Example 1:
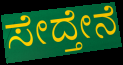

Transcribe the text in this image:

ಸೇದ್ತೇನೆ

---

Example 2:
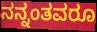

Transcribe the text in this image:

ನನ್ನಂತವರೂ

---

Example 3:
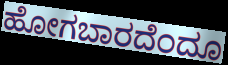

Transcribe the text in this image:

ಹೋಗಬಾರದೆಂದೂ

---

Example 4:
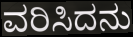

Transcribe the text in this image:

ವರಿಸಿದನು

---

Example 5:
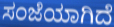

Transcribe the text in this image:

ಸಂಜೆಯಾಗಿದೆ